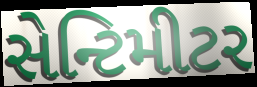
સેન્ટિમીટર